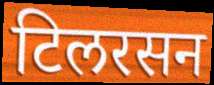
टिलरसन